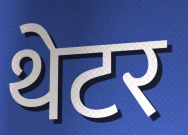
थेटर